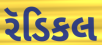
રૅડિકલ